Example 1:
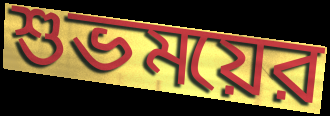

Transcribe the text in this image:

শুভময়ের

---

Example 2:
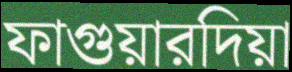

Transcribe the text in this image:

ফাগুয়ারদিয়া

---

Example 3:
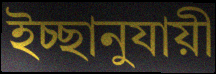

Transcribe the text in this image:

ইচ্ছানুযায়ী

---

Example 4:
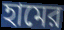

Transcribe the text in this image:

হামের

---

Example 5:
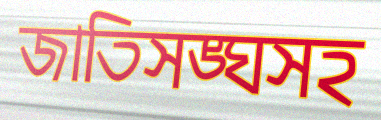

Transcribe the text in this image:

জাতিসঙ্ঘসহ